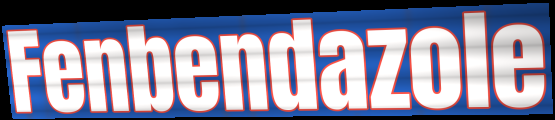
Fenbendazole